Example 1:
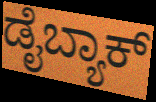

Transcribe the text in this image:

ಡೈಬ್ಯಾಕ್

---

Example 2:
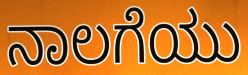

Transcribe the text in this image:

ನಾಲಗೆಯು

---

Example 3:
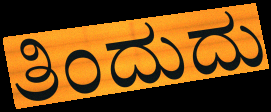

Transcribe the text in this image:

ತಿಂದುದು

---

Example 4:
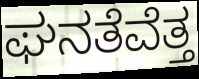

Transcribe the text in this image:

ಘನತೆವೆತ್ತ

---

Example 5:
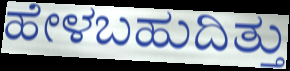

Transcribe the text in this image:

ಹೇಳಬಹುದಿತ್ತು